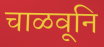
चाळवूनि